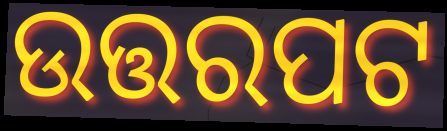
ଉତ୍ତରପଟ